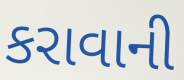
કરાવાની